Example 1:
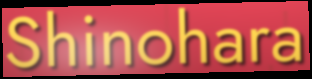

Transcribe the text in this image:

Shinohara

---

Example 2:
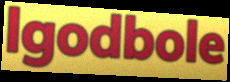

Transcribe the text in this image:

lgodbole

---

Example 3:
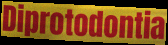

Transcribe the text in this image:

Diprotodontia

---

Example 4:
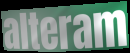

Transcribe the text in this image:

alteram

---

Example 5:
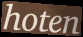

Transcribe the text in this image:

hoten